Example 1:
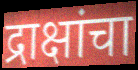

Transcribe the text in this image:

द्राक्षांचा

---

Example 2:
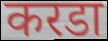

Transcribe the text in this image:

करडा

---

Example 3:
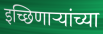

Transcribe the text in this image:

इच्छिणार्‍यांच्या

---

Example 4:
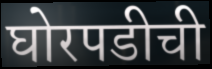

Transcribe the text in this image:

घोरपडीची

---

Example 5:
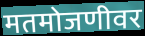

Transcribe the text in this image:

मतमोजणीवर